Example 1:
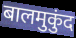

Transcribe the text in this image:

बालमुकुंद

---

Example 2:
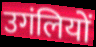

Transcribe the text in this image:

उगंलियों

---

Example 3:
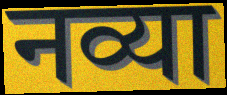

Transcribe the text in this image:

नव्या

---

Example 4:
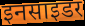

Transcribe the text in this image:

इनसाइडर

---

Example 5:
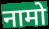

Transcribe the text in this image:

नामो